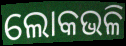
ଲୋକଭଳି